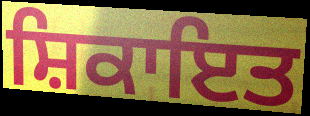
ਸ਼ਿਕਾਇਤ